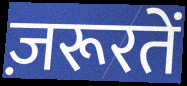
ज़रूरतें